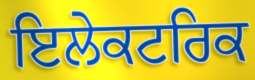
ਇਲੇਕਟਰਿਕ